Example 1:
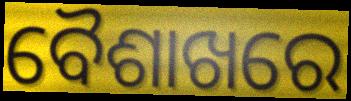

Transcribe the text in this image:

ବୈଶାଖରେ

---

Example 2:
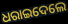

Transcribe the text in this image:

ଧରାଇଦେଲେ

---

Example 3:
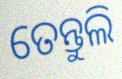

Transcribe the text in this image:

ତେନ୍ତୁଲି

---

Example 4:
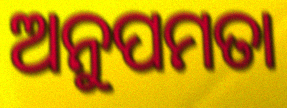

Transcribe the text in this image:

ଅନୁପମତା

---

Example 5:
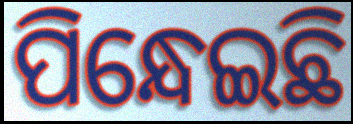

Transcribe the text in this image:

ପିନ୍ଧେଇଛି